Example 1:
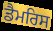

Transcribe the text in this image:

ਡੈਮਰਿਸ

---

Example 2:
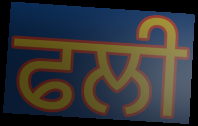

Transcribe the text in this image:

ਫਲੀ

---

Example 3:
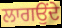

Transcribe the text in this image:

ਲਾਗਉਂਦੇ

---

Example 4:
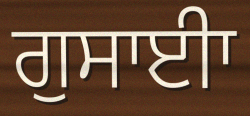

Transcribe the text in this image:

ਗੁਸਾਈਾ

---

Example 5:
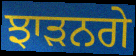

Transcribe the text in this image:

ਝਾੜਨਗੇ